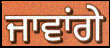
ਜਾਵਾਂਗੇ